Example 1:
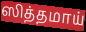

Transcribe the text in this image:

ஸித்தமாய்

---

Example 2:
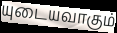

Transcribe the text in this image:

யுடையவாகும்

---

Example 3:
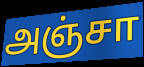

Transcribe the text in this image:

அஞ்சா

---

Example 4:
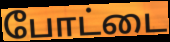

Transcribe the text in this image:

போட்டை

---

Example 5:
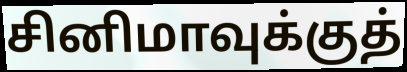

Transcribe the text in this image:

சினிமாவுக்குத்